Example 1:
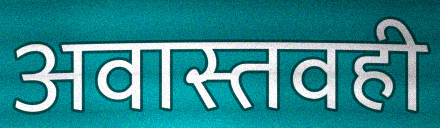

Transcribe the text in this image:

अवास्तवही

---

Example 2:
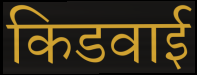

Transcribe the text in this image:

किडवाई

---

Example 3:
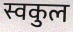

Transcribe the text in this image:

स्वकुल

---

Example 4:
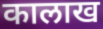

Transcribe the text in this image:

कालाख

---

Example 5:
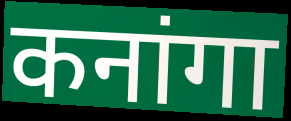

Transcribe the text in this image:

कनांगा